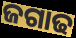
ଜଗାଢ